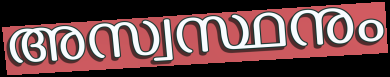
അസ്വസ്ഥനും